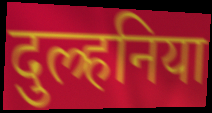
दुल्हनिया